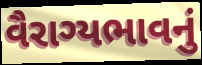
વૈરાગ્યભાવનું